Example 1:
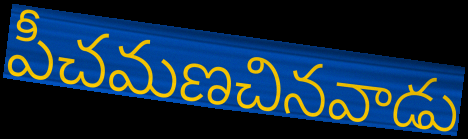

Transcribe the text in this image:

పీచమణచినవాడు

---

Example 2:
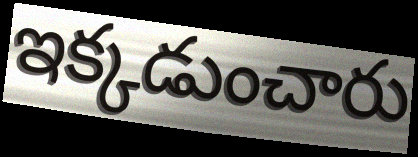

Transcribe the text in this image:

ఇక్కడుంచారు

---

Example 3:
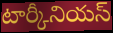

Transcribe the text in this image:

టార్కీనియస్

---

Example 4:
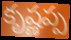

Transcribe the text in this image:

కృష్ణప్ప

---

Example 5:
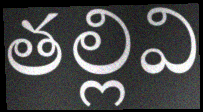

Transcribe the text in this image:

తల్లివి